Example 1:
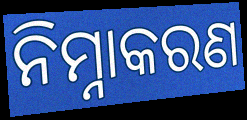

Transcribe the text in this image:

ନିମ୍ନାକରଣ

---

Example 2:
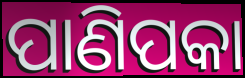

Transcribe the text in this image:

ପାଣିପକା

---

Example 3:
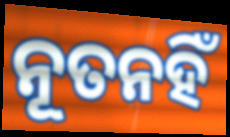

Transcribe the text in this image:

ନୂତନହିଁ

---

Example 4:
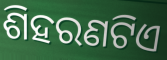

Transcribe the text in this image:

ଶିହରଣଟିଏ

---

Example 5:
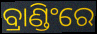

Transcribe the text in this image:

ବ୍ରାଣ୍ଡିଂରେ